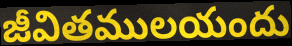
జీవితములయందు